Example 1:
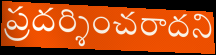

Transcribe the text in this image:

ప్రదర్శించరాదని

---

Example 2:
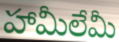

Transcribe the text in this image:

హామీలేమీ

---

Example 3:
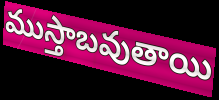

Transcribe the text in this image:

ముస్తాబవుతాయి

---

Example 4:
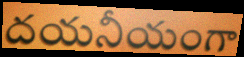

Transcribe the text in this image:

దయనీయంగా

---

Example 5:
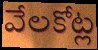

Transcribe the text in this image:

వేలకోట్ల